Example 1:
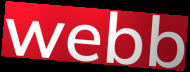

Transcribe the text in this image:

webb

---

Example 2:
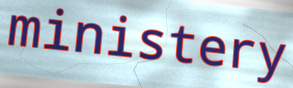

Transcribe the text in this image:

ministery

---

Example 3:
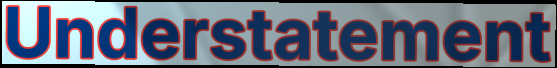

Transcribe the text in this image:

Understatement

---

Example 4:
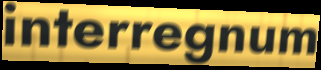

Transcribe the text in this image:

interregnum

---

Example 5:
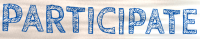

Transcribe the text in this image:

PARTICIPATE